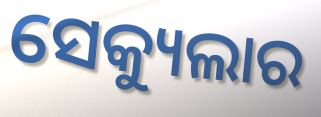
ସେକ୍ୟୁଲାର